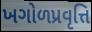
ખગોળપ્રવૃત્તિ